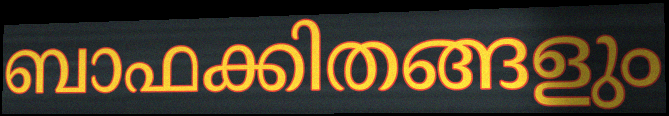
ബാഫക്കിതങ്ങളും